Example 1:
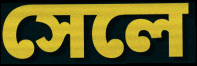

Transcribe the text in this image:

সেলে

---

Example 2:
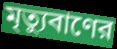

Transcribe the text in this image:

মৃত্যুবাণের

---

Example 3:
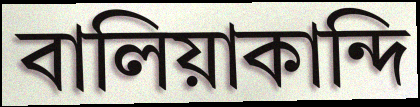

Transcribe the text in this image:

বালিয়াকান্দি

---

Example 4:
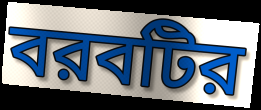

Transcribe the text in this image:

বরবটির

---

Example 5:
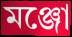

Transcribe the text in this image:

মঞ্জো